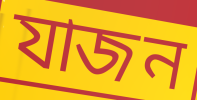
যাজন